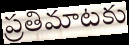
ప్రతిమాటకు